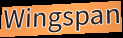
Wingspan